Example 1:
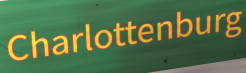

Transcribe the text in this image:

Charlottenburg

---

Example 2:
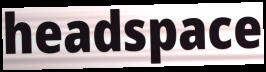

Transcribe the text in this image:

headspace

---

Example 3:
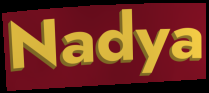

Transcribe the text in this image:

Nadya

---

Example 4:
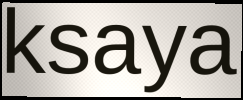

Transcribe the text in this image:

ksaya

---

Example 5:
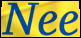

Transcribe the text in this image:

Nee